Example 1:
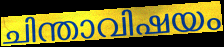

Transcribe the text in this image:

ചിന്താവിഷയം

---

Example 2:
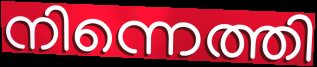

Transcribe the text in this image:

നിന്നെത്തി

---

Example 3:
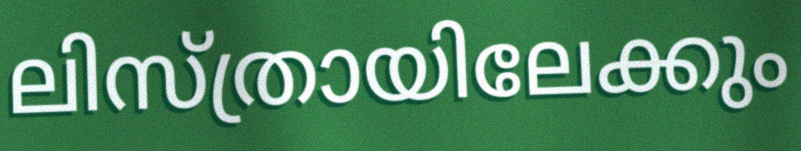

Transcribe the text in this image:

ലിസ്ത്രായിലേക്കും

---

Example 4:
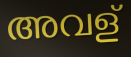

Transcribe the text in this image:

അവള്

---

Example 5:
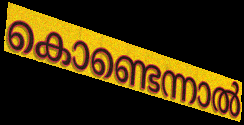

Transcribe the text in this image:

കൊണ്ടെന്നാൽ